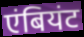
एंबियंट